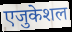
एजुकेशल